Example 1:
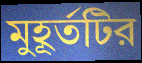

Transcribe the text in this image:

মুহূর্তটির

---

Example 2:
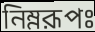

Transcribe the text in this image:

নিম্নরূপঃ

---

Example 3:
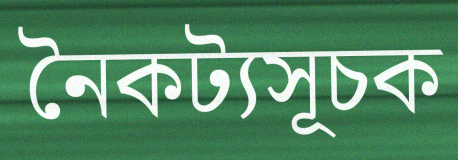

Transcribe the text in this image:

নৈকট্যসূচক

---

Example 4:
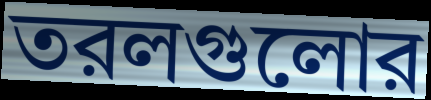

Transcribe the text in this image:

তরলগুলোর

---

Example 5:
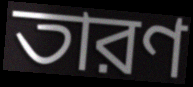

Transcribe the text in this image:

তারণ